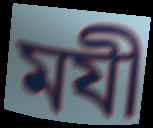
মযী